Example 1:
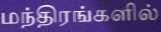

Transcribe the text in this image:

மந்திரங்களில்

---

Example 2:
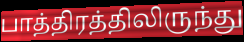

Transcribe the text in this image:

பாத்திரத்திலிருந்து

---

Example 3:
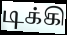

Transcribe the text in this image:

டிக்கி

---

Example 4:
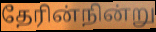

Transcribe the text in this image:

தேரின்நின்று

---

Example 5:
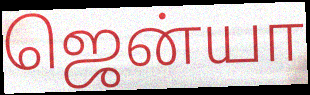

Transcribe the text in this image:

ஜென்யா